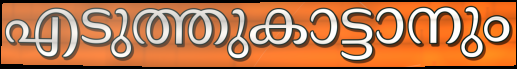
എടുത്തുകാട്ടാനും